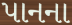
પાનના